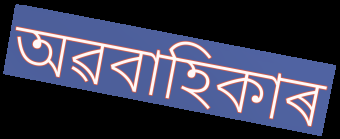
অৱবাহিকাৰ